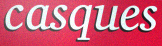
casques